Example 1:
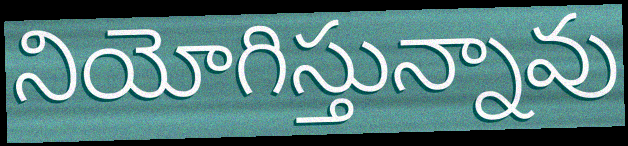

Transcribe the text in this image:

నియోగిస్తున్నావు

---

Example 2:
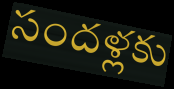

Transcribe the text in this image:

సందళ్లకు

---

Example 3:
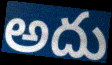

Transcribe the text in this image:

అదు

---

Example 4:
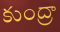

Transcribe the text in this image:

కుంద్రా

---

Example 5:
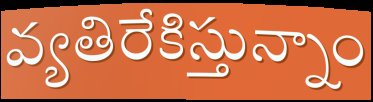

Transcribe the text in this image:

వ్యతిరేకిస్తున్నాం